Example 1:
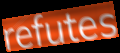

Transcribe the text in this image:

refutes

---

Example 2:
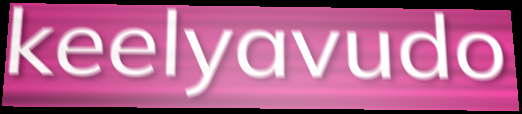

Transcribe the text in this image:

keelyavudo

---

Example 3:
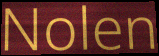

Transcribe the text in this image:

Nolen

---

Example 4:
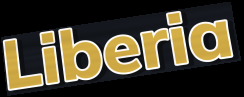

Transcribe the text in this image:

Liberia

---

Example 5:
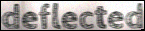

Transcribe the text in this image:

deflected